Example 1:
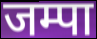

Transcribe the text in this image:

जम्पा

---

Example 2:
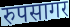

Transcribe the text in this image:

रुपसागर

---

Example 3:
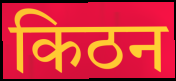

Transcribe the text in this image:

किठन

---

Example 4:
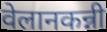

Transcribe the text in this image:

वेलानकन्नी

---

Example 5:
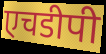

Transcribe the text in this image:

एचडीपी